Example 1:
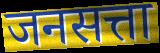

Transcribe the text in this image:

जनसत्ता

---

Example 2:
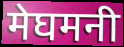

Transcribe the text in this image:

मेघमनी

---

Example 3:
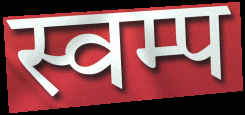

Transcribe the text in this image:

स्वम्प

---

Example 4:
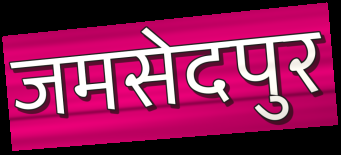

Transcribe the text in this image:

जमसेदपुर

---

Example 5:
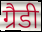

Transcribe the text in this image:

ग्रैडी